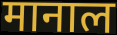
मानाल